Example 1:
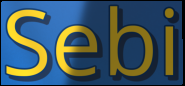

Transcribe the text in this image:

Sebi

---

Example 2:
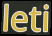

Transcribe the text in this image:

leti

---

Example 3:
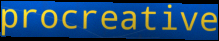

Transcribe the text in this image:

procreative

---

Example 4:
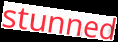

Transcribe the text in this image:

stunned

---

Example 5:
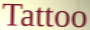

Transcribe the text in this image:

Tattoo